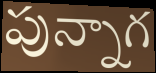
పున్నాగ